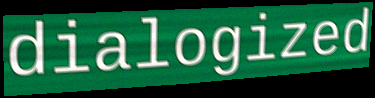
dialogized